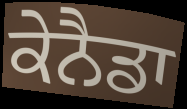
ਕੇਨੈਡਾ